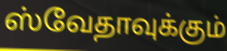
ஸ்வேதாவுக்கும்